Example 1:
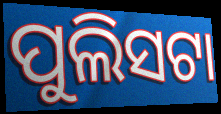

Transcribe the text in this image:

ପୁଲିସଟା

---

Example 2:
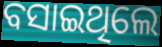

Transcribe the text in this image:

ବସାଇଥିଲେ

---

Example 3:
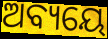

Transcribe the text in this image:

ଅବ୍ୟୟେ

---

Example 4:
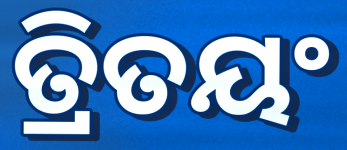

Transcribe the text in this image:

ତ୍ରିତୟଂ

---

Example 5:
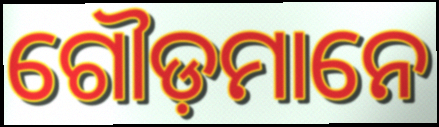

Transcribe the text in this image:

ଗୌଡ଼ମାନେ